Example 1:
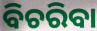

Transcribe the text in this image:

ବିଚରିବା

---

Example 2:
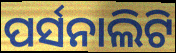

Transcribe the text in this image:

ପର୍ସନାଲିଟି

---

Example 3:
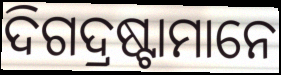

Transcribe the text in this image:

ଦିଗଦ୍ରଷ୍ଟାମାନେ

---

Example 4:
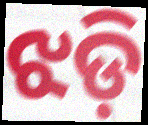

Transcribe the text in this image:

ଝଡ଼ି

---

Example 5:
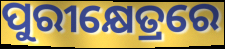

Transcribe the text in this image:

ପୁରୀକ୍ଷେତ୍ରରେ